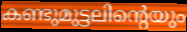
കണ്ടുമുട്ടലിന്റെയും